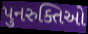
પુનરુક્તિઓ